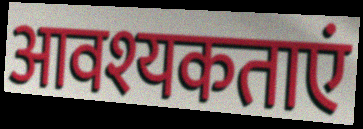
आवश्‍यकताएं